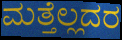
ಮತ್ತೆಲ್ಲದರ